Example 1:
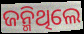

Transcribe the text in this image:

ଜନ୍ମିଥିଲେ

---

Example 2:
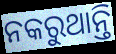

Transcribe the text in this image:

ନକରୁଥାନ୍ତି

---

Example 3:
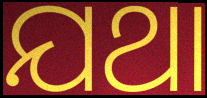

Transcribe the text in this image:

ଯଥା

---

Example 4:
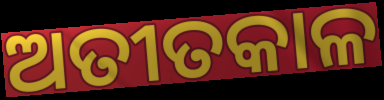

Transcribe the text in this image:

ଅତୀତକାଳ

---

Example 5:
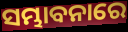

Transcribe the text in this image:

ସମ୍ଭାବନାରେ